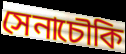
সেনাচৌকি